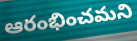
ఆరంభించమని